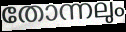
തോന്നലും